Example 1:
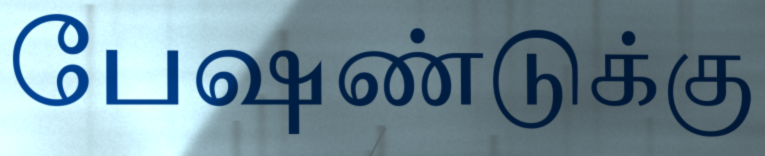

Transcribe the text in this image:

பேஷண்டுக்கு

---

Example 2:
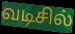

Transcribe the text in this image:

வடிசில்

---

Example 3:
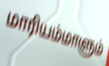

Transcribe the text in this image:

மாரியம்மாளும்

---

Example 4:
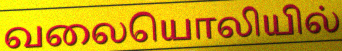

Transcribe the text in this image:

வலையொலியில்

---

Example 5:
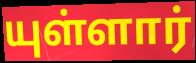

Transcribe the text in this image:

யுள்ளார்